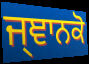
ਜ੍ਞਾਨਕੋ